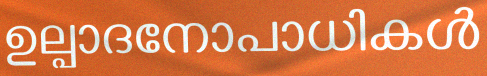
ഉല്പാദനോപാധികൾ